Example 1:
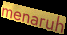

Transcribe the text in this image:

menaruh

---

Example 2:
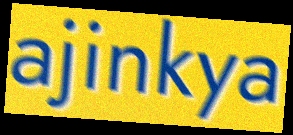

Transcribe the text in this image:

ajinkya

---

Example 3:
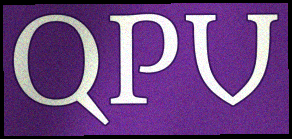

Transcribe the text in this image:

QPU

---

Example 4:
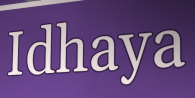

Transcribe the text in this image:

Idhaya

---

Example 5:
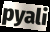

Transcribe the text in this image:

pyali